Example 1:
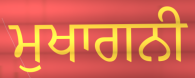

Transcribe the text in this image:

ਮੁਖਾਗਨੀ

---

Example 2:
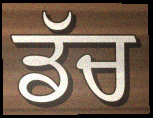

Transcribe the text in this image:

ਡੱਚ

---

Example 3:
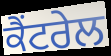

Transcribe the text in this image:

ਕੈਂਟਰੇਲ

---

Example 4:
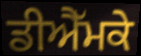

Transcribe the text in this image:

ਡੀਐੱਮਕੇ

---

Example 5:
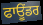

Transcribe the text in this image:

ਫਾਊਂਡਰ